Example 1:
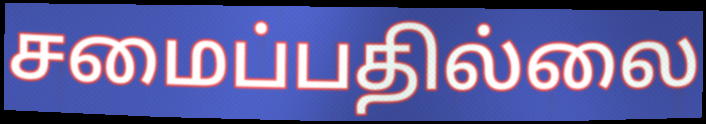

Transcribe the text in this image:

சமைப்பதில்லை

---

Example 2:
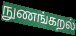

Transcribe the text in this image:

நுணங்கறல்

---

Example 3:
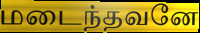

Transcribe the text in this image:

மடைந்தவனே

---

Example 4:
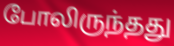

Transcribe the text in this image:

போலிருந்தது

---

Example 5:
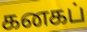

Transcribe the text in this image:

கனகப்